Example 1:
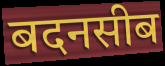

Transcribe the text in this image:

बदनसीब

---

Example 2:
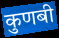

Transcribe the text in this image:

कुणबी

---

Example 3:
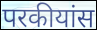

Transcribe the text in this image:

परकीयांस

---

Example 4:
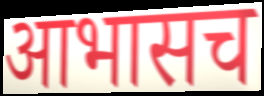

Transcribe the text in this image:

आभासच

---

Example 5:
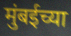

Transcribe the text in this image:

मुंबईच्या